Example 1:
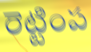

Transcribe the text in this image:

రెట్టింప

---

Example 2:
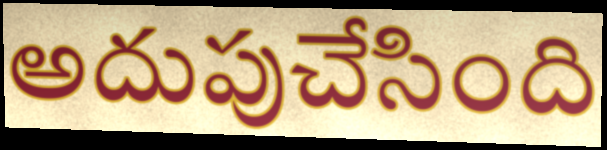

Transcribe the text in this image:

అదుపుచేసింది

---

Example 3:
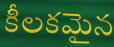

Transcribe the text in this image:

కీలకమైన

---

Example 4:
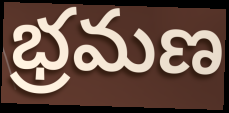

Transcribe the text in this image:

భ్రమణ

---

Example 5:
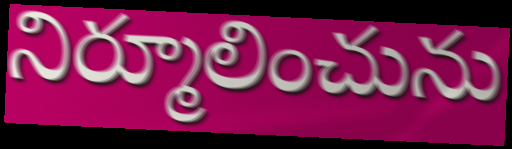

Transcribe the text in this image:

నిర్మూలించును